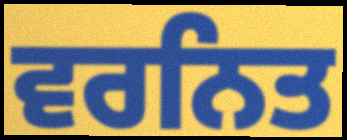
ਵਰਨਿਤ